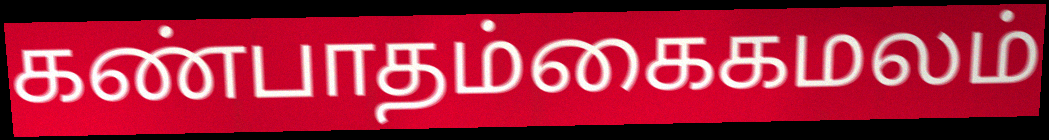
கண்பாதம்கைகமலம்